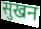
सुखन